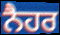
ਨੈਹਰ